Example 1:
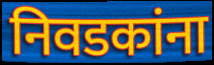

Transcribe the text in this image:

निवडकांना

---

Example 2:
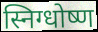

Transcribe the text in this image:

स्निग्धोष्ण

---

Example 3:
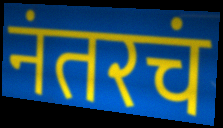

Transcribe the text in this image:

नंतरचं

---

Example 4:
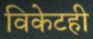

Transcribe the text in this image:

विकेटही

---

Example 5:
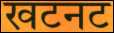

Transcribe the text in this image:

खटनट